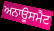
ਅਨਾਊਸਮੈਟ